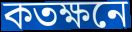
কতক্ষনে